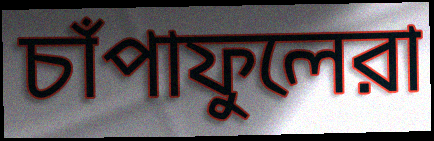
চাঁপাফুলেরা